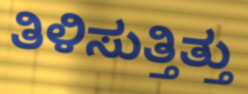
ತಿಳಿಸುತ್ತಿತ್ತು